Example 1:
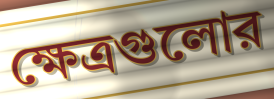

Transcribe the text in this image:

ক্ষেত্রগুলোর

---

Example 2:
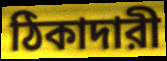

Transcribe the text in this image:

ঠিকাদারী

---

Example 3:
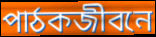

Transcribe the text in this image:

পাঠকজীবনে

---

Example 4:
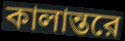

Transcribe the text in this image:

কালান্তরে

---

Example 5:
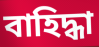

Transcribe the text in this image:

বাহিদ্ধা